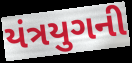
યંત્રયુગની